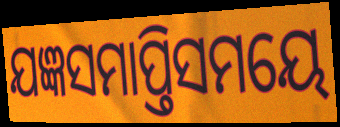
ଯଜ୍ଞସମାପ୍ତିସମୟେ